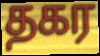
தகர